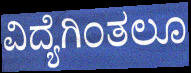
ವಿದ್ಯೆಗಿಂತಲೂ